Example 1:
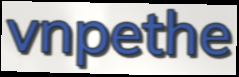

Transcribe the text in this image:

vnpethe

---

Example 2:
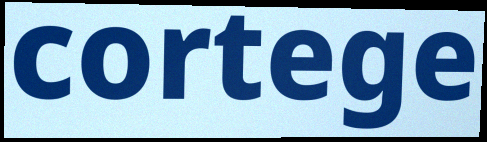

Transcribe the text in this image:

cortege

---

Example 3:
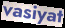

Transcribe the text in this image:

vasiyat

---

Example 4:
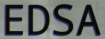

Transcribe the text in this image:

EDSA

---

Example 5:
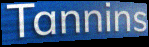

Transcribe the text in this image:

Tannins